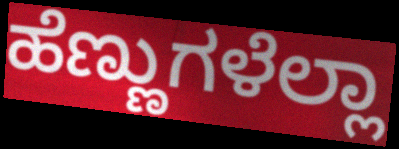
ಹೆಣ್ಣುಗಳೆಲ್ಲಾ